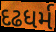
દઢધર્મ